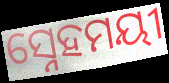
ସ୍ନେହମୟୀ